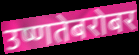
उष्णतेबरोबर